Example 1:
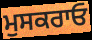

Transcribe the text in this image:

ਮੁਸਕਰਾਓ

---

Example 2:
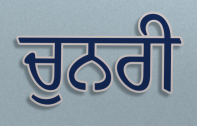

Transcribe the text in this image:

ਚੁਨਰੀ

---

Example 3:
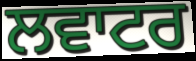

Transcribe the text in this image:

ਲਵਾਟਰ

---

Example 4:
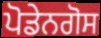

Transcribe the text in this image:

ਪੋਡੇਨਗੋਸ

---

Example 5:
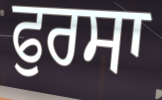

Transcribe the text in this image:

ਫੁਰਸਾ